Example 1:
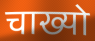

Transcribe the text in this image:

चाख्यो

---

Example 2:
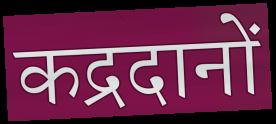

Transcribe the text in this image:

कद्रदानों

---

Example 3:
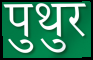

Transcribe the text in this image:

पुथुर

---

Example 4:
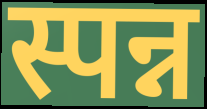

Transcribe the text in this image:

स्पन्न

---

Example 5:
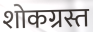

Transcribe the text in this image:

शोकग्रस्त